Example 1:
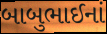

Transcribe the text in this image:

બાબુભાઈનાં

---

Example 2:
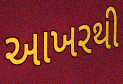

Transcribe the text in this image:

આખરથી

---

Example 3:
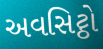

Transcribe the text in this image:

અવસિટ્ઠો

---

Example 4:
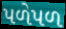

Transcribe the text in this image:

પળેપળ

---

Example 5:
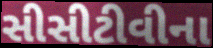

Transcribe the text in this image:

સીસીટીવીના